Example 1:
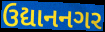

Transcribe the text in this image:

ઉદ્યાનનગર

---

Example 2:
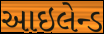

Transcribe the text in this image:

આઇલેન્ડ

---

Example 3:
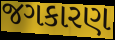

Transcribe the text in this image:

જગકારણ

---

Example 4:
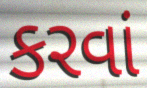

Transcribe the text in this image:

કરવાં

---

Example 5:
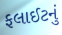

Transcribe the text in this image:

ફલાઈટનું